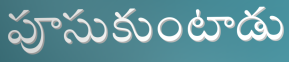
పూసుకుంటాడు